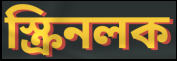
স্ক্রিনলক